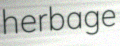
herbage